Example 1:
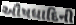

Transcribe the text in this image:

ઔષધાદિની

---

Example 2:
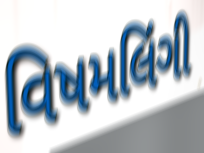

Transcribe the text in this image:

વિષમલિંગી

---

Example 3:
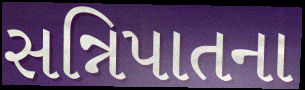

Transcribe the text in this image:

સન્નિપાતના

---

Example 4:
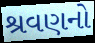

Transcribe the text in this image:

શ્રવણનો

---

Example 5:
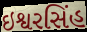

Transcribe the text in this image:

ઇશ્વરસિંહ